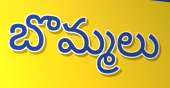
బొమ్మలు